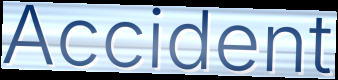
Accident